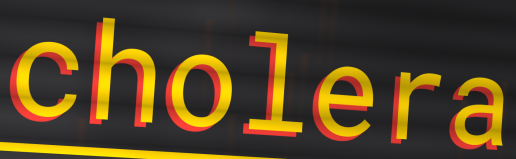
cholera